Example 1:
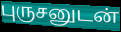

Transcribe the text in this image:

புருசனுடன்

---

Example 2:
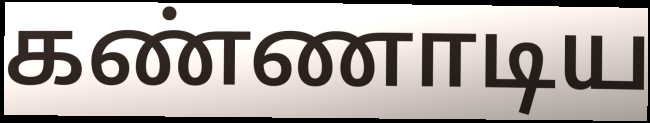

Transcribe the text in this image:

கண்ணாடிய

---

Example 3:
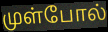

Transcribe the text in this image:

முள்போல்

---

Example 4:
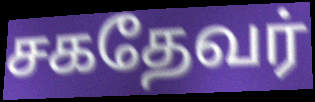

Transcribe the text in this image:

சகதேவர்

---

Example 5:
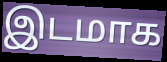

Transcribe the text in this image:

இடமாக